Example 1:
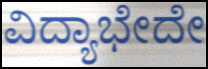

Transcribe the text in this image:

ವಿದ್ಯಾಭೇದೇ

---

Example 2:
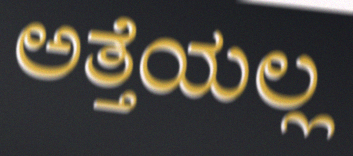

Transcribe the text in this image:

ಅತ್ತೆಯಲ್ಲ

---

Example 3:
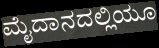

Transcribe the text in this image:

ಮೈದಾನದಲ್ಲಿಯೂ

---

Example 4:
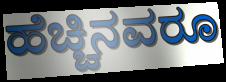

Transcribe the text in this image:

ಹೆಚ್ಚಿನವರೂ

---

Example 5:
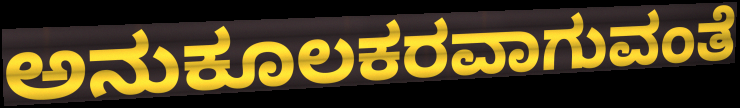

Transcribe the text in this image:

ಅನುಕೂಲಕರವಾಗುವಂತೆ